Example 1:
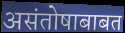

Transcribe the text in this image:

असंतोषाबाबत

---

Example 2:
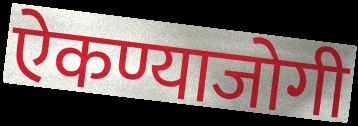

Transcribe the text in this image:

ऐकण्याजोगी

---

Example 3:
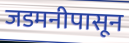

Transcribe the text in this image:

जडमनीपासून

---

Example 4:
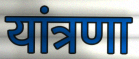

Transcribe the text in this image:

यांत्रणा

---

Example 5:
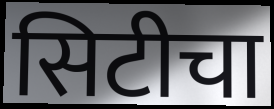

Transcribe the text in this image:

सिटीचा